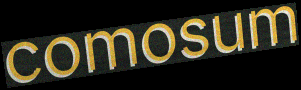
comosum